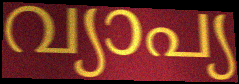
വ്യാപ്യ